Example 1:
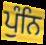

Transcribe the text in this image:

ਪੁੰਨਿ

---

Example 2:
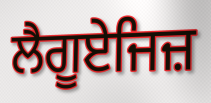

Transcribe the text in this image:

ਲੈਗੂਏਜਿਜ਼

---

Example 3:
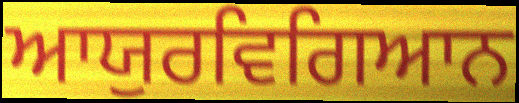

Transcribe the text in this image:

ਆਯੁਰਵਿਗਿਆਨ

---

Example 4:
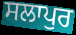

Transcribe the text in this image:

ਸਲਾਪੁਰ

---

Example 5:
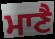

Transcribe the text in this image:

ਮਾਣੈ